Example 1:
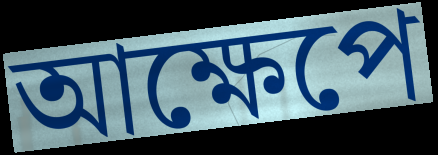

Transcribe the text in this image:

আক্ষেপে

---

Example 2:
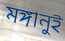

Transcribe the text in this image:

মঙ্গানুই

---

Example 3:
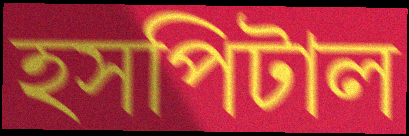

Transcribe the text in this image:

হসপিটাল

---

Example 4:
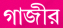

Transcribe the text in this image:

গাজীর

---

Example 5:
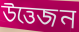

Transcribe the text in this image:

উত্তেজন